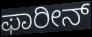
ಫಾರೀನ್